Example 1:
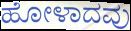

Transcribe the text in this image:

ಹೋಳಾದವು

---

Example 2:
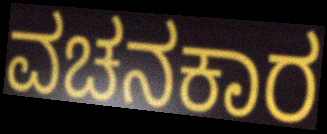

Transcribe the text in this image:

ವಚನಕಾರ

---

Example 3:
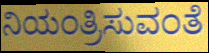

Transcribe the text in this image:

ನಿಯಂತ್ರಿಸುವಂತೆ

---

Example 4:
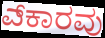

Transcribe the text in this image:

ಎ್‍ಕಾರವು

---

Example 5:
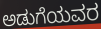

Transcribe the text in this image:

ಅಡುಗೆಯವರ